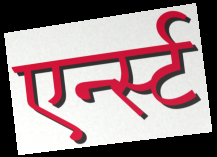
एर्न्स्ट